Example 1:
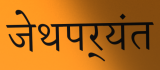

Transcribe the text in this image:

जेथपर्यंत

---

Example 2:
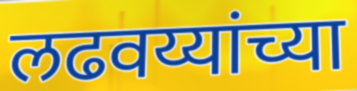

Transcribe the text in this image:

लढवय्यांच्या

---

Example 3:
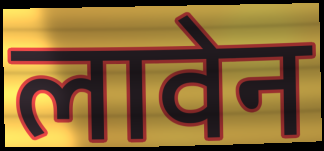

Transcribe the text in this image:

लावेन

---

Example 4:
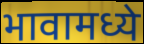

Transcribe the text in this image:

भावामध्ये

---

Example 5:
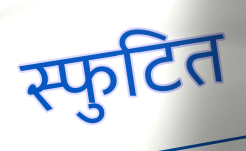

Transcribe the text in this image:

स्फुटित